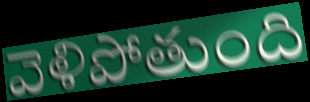
వెళిపోతుంది